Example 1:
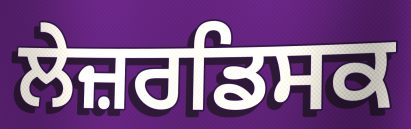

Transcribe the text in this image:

ਲੇਜ਼ਰਡਿਸਕ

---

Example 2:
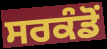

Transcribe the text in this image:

ਸਰਕੰਡੋਂ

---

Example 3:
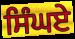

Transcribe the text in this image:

ਸਿੰਘਏ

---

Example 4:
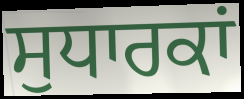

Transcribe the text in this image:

ਸੁਧਾਰਕਾਂ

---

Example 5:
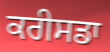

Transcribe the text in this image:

ਕਰੀਸਡਾ